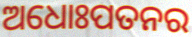
ଅଧୋଃପତନର